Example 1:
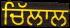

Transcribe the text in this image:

ਚਿੱਲਾਲ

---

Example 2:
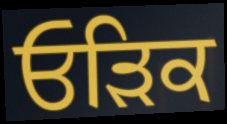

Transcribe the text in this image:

ਓੜਿਕ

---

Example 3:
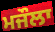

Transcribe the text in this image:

ਮਜੌਲਾ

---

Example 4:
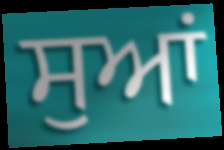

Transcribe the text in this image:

ਸੁਆਂ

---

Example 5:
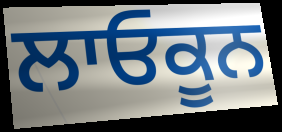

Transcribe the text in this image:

ਲਾਓਕੂਨ